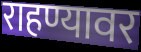
राहण्यावर